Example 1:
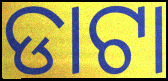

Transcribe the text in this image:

ଡାଟା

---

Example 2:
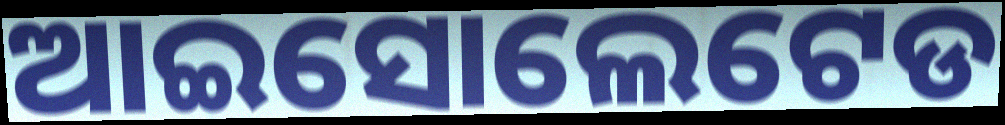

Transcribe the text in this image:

ଆଇସୋଲେଟେଡ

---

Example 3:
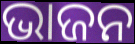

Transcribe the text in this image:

ଭାଜନ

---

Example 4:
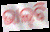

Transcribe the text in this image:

ଭାଲ୍‌ବି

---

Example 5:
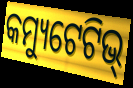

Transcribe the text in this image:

କମ୍ୟୁଟେଟିଭ୍